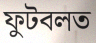
ফুটবলত